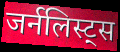
जर्नलिस्ट्स